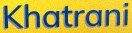
Khatrani